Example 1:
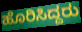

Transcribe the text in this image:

ಹೊರಿಸಿದ್ದರು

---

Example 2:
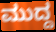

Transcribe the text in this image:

ಮುದ್ದ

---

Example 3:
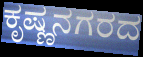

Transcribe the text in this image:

ಕೃಷ್ಣನಗರದ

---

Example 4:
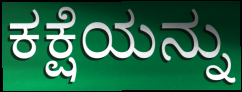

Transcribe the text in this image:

ಕಕ್ಷೆಯನ್ನು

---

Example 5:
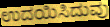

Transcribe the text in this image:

ಉದಯಿಸಿದುವು